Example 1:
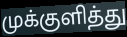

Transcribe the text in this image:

முக்குளித்து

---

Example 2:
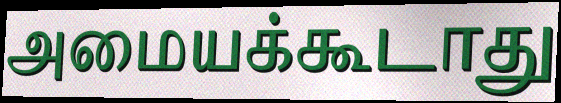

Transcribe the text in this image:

அமையக்கூடாது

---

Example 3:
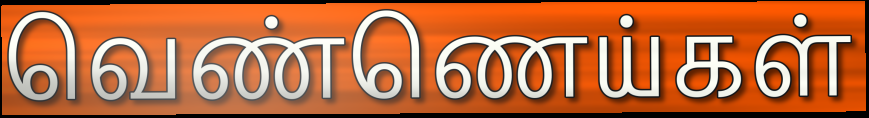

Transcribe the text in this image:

வெண்ணெய்கள்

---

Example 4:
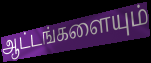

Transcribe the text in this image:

ஆட்டங்களையும்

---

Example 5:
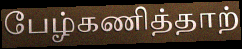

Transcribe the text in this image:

பேழ்கணித்தாற்